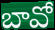
బావో